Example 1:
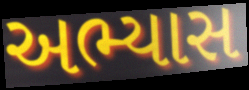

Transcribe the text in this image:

અભ્યાસ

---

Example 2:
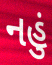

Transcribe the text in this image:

નહું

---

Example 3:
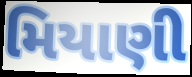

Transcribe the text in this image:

મિયાણી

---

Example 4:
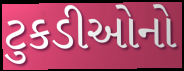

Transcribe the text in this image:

ટુકડીઓનો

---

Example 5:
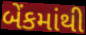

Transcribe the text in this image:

બેંકમાંથી